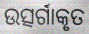
ଉତ୍ସର୍ଗାକୃତ